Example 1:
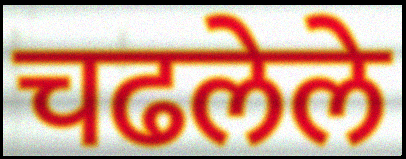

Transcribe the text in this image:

चढलेले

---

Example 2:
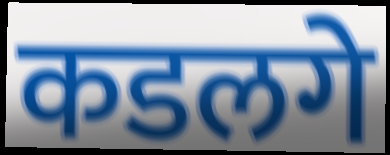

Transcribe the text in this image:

कडलगे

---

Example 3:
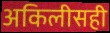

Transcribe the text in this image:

अकिलीसही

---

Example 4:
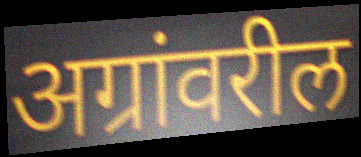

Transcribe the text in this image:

अग्रांवरील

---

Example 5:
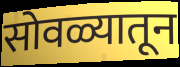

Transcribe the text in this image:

सोवळ्यातून